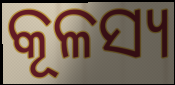
କୂଳସ୍ଯ